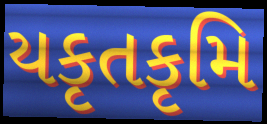
યકૃતકૃમિ